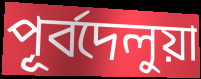
পূর্বদেলুয়া